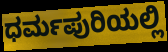
ಧರ್ಮಪುರಿಯಲ್ಲಿ